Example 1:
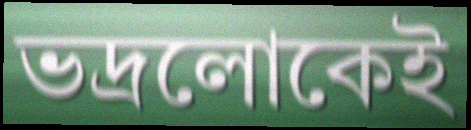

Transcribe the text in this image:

ভদ্রলোকেই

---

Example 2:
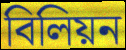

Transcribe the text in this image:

বিলিয়ন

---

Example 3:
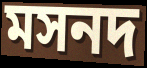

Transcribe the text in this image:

মসনদ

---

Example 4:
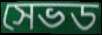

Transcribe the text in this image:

সেভড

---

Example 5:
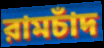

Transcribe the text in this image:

রামচাঁদ